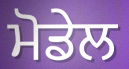
ਮੋਡੇਲ